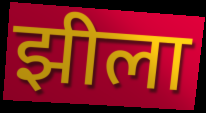
झीला